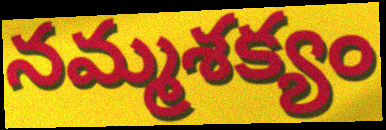
నమ్మశక్యం